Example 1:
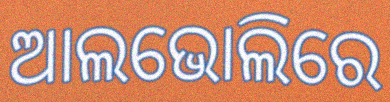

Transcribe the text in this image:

ଆଲଭୋଲିରେ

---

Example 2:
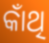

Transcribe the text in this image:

କାଁଥି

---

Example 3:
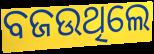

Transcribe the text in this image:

ବଜଉଥିଲେ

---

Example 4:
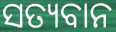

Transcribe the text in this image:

ସତ୍ୟବାନ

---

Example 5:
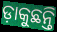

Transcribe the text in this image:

ଡ଼ାକୁଛନ୍ତି